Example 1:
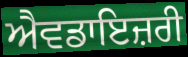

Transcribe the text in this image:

ਐਵਡਾਇਜ਼ਰੀ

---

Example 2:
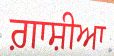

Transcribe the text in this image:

ਗ਼ਾਸ਼ੀਆ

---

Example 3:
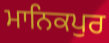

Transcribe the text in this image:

ਮਾਨਿਕਪੁਰ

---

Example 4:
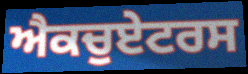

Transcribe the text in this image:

ਐਕਚੁਏਟਰਸ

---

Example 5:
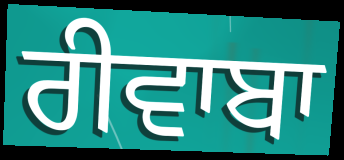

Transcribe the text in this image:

ਰੀਵਾਬਾ